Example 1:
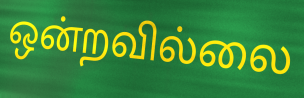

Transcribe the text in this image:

ஒன்றவில்லை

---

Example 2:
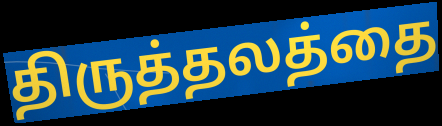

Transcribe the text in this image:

திருத்தலத்தை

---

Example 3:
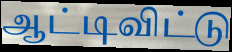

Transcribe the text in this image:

ஆட்டிவிட்டு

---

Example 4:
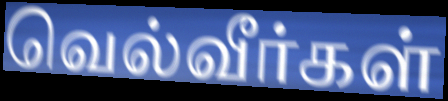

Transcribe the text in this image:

வெல்வீர்கள்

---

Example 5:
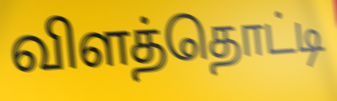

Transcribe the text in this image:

விளத்தொட்டி